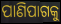
ପାଣିପାଗକୁ